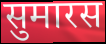
सुमारस